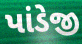
પાંડેજી